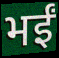
भईं